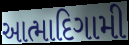
આત્માદિગામી